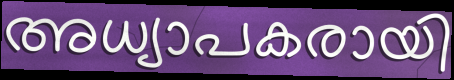
അധ്യാപകരായി